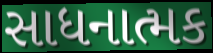
સાધનાત્મક